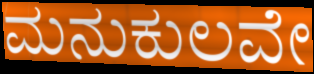
ಮನುಕುಲವೇ